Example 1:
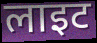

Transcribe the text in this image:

लाइट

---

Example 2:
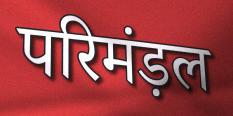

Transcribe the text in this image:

परिमंड़ल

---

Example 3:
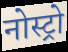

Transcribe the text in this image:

नोस्ट्रो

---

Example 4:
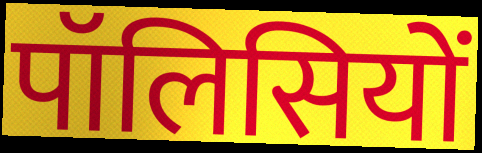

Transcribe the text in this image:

पॉलिसियों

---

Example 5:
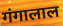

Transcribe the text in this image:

गंगालाल